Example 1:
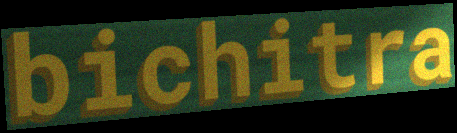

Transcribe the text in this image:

bichitra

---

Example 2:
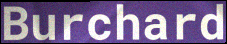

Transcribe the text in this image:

Burchard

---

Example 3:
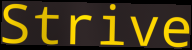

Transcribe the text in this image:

Strive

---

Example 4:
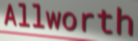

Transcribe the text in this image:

Allworth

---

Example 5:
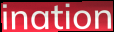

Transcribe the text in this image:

ination